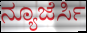
ನ್ಯೂಜೆರ್ಸಿ